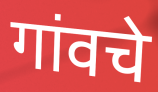
गांवचे